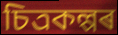
চিত্ৰকল্পৰ